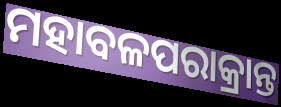
ମହାବଳପରାକ୍ରାନ୍ତ